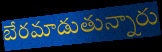
బేరమాడుతున్నారు